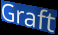
Graft